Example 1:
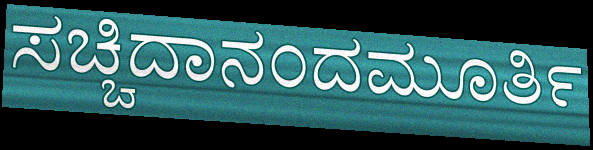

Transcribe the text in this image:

ಸಚ್ಚಿದಾನಂದಮೂರ್ತಿ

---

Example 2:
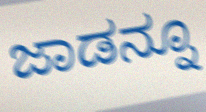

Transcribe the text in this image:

ಜಾಡನ್ನೂ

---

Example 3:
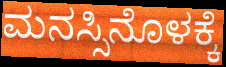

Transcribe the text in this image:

ಮನಸ್ಸಿನೊಳಕ್ಕೆ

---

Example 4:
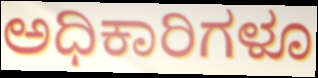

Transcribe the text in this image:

ಅಧಿಕಾರಿಗಳೂ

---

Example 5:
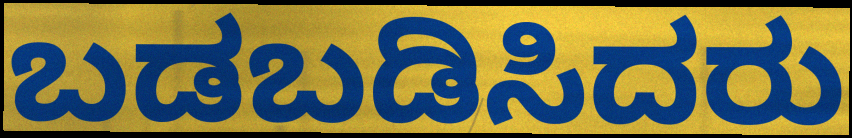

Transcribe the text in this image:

ಬಡಬಡಿಸಿದರು